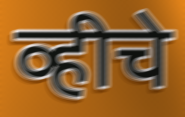
व्हीचे